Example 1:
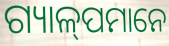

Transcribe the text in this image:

ଗ୍ୟାଳ୍‍ପମାନେ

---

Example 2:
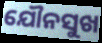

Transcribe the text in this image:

ଯୌନସୁଖ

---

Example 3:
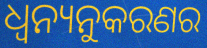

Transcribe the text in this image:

ଧ୍ବନ୍ୟନୁକରଣର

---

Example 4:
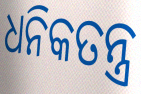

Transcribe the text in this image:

ଧନିକତନ୍ତ୍ର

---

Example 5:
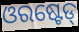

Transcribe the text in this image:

ଓରଷ୍ଟେଡ୍